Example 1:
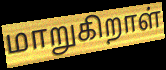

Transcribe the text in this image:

மாறுகிறாள்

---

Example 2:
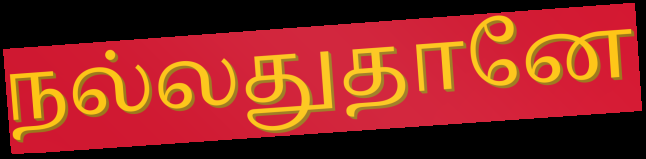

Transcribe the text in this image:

நல்லதுதானே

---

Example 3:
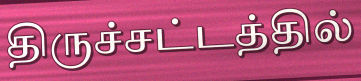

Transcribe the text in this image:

திருச்சட்டத்தில்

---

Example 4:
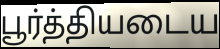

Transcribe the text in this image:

பூர்த்தியடைய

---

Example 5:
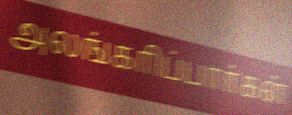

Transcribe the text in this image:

அலங்கரிப்பார்கள்